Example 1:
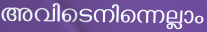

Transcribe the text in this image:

അവിടെനിന്നെല്ലാം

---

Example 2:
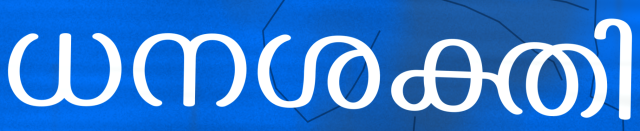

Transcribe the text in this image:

ധനശക്തി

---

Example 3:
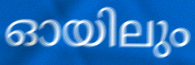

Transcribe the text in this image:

ഓയിലും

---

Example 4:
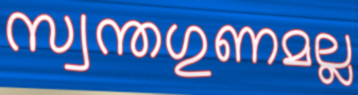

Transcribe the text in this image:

സ്വന്തഗുണമല്ല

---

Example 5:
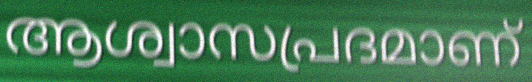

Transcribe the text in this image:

ആശ്വാസപ്രദമാണ്